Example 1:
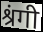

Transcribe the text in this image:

श्रंगी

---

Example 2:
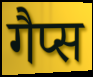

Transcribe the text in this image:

गैप्स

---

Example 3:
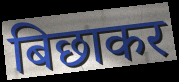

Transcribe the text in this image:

बिछाकर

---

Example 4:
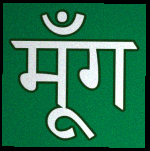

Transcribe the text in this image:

मूँग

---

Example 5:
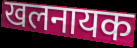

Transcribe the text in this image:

खलनायक